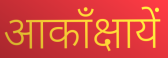
आकाँक्षायें